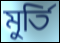
মুৰ্তি